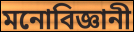
মনোবিজ্ঞানী